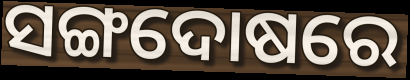
ସଙ୍ଗଦୋଷରେ